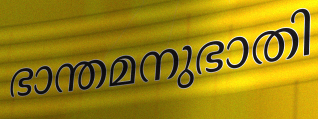
ഭാന്തമനുഭാതി